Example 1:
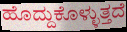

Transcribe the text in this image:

ಹೊದ್ದುಕೊಳ್ಳುತ್ತದೆ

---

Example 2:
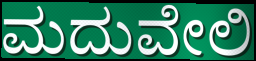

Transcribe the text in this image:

ಮದುವೇಲಿ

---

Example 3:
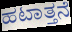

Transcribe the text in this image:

ಹಟಾತ್ತನೆ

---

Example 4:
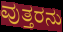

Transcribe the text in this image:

ವುತ್ತರನು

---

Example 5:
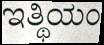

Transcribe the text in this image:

ಇತ್ಥಿಯಂ